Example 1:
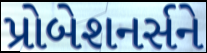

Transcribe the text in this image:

પ્રોબેશનર્સને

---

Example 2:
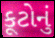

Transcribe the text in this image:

કૂટોનું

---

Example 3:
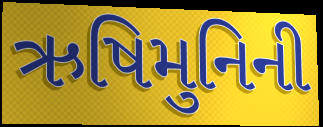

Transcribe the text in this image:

ઋષિમુનિની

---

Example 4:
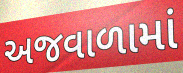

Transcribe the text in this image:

અજવાળામાં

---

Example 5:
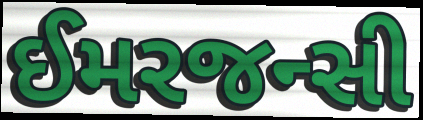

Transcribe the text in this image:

ઈમરજન્સી